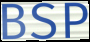
BSP